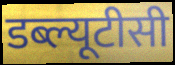
डब्ल्यूटीसी